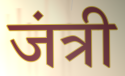
जंत्री